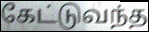
கேட்டுவந்த